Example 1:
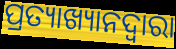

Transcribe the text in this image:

ପ୍ରତ୍ୟାଖ୍ୟାନଦ୍ଵାରା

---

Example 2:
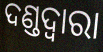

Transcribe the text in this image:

ଦଣ୍ଡଦ୍ୱାରା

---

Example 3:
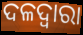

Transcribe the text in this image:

ଦଳଦ୍ୱାରା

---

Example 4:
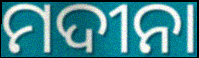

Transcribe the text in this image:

ମଦୀନା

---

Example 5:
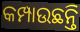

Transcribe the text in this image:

କମ୍ପାଉଛନ୍ତି